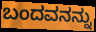
ಬಂದವನನ್ನು